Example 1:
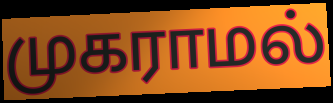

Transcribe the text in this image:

முகராமல்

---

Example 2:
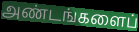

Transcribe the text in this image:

அண்டங்களைப்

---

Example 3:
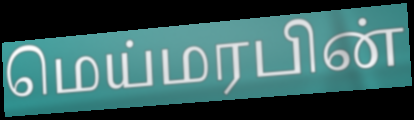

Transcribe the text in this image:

மெய்மரபின்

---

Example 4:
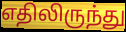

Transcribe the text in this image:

எதிலிருந்து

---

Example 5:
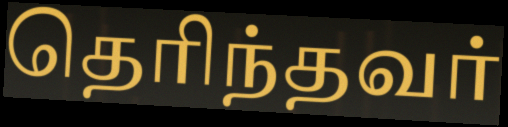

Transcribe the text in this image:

தெரிந்தவர்